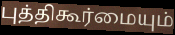
புத்திகூர்மையும்